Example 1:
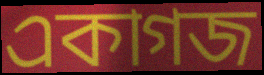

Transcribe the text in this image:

একাগজ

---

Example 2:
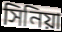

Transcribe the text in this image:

সিনিয়া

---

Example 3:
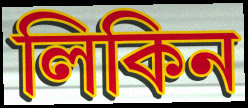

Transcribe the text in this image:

লিকিন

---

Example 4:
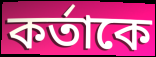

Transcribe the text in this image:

কর্তাকে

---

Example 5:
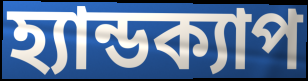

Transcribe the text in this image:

হ্যান্ডক্যাপ